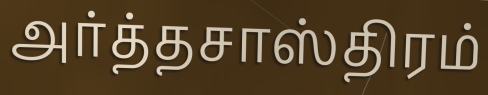
அர்த்தசாஸ்திரம்